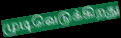
முடிவெடுக்கிறது